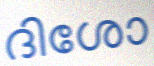
ദിശോ